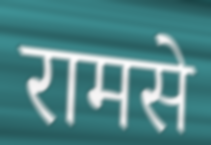
रामसे